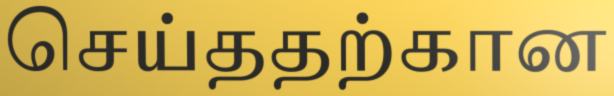
செய்ததற்கான